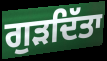
ਗੁੜਦਿੱਤਾ